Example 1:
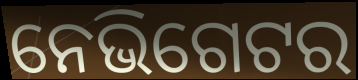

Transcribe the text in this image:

ନେଭିଗେଟର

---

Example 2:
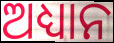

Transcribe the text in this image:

ଅଧ୍ୟାନ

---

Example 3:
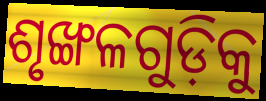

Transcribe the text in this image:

ଶୃଙ୍ଖଳଗୁଡ଼ିକୁ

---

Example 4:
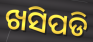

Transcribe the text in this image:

ଖସିପଡି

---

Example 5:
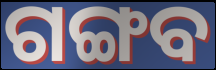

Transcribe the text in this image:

ଗଙ୍ଗବ